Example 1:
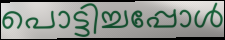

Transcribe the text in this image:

പൊട്ടിച്ചപ്പോൾ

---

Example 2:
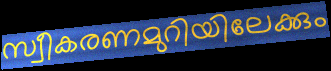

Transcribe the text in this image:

സ്വീകരണമുറിയിലേക്കും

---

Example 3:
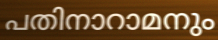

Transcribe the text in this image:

പതിനാറാമനും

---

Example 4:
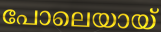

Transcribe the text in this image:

പോലെയായ്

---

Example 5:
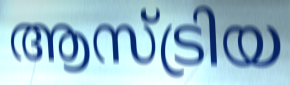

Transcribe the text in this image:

ആസ്ട്രിയ